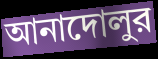
আনাদোলুর